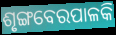
ଶୃଙ୍ଗବେରପାଳକି